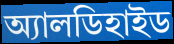
অ্যালডিহাইড